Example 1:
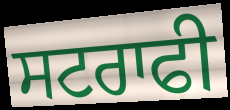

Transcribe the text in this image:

ਸਟਰਾਫੀ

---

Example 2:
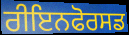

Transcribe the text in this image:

ਰੀਇਨਫੋਰਸਡ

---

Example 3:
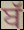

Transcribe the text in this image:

ਬੱ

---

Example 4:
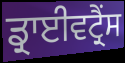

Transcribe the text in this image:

ਡ੍ਰਾਈਵਟ੍ਰੈਂਸ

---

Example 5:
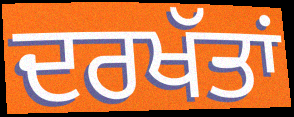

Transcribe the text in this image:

ਦਰਖੱਤਾਂ